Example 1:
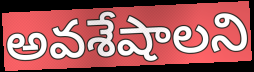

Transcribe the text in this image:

అవశేషాలని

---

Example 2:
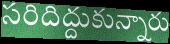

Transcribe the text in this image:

సరిదిద్దుకున్నారు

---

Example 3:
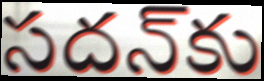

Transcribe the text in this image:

సదన్‌కు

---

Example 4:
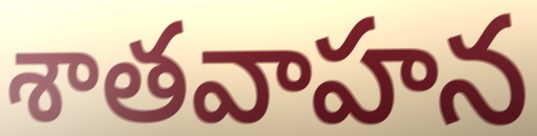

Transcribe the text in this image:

శాతవాహన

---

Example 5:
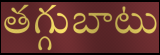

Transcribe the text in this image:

తగ్గుబాటు